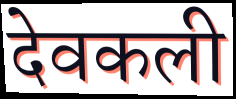
देवकली